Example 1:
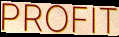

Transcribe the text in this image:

PROFIT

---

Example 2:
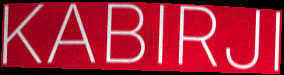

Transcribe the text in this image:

KABIRJI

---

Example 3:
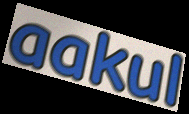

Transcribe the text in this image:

aakul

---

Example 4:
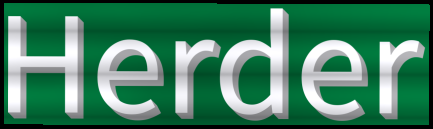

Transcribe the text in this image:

Herder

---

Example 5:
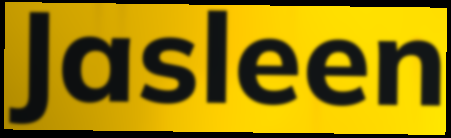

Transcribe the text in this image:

Jasleen